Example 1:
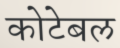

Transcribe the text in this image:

कोटेबल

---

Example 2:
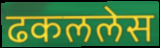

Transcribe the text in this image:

ढकललेस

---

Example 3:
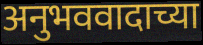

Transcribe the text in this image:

अनुभववादाच्या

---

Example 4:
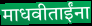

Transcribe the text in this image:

माधवीताईंना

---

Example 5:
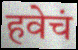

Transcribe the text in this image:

हवेचं